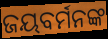
ଜୟବର୍ମନଙ୍କ